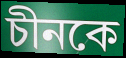
চীনকে